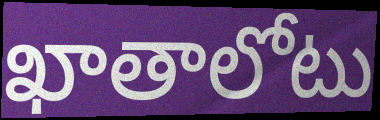
ఖాతాలోటు